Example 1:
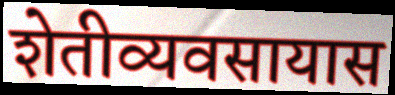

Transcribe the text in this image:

शेतीव्यवसायास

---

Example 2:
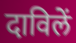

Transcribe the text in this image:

दाविलें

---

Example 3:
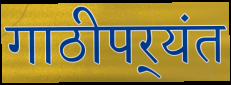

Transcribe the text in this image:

गाठीपर्यंत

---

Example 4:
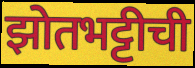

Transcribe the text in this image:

झोतभट्टीची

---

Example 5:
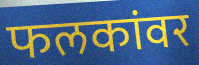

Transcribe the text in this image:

फलकांवर